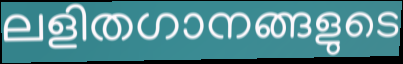
ലളിതഗാനങ്ങളുടെ